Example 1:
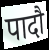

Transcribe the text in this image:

पादौ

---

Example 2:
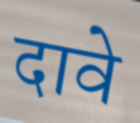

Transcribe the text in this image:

दावे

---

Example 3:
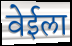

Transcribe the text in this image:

वेईला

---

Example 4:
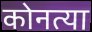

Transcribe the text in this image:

कोनत्या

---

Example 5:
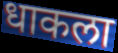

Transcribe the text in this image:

धाकला